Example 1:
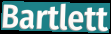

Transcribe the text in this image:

Bartlett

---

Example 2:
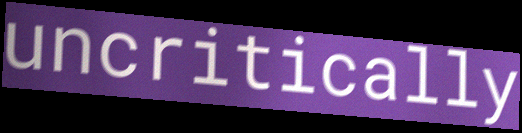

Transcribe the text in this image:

uncritically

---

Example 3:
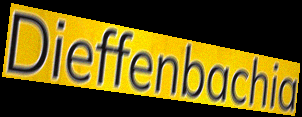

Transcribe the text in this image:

Dieffenbachia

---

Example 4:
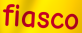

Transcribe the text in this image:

fiasco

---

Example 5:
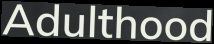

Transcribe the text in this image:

Adulthood